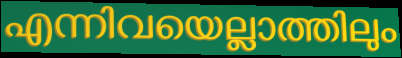
എന്നിവയെല്ലാത്തിലും